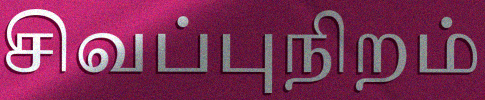
சிவப்புநிறம்